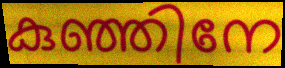
കുഞ്ഞിനേ